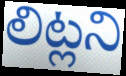
లిట్లని